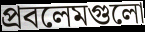
প্রবলেমগুলো